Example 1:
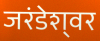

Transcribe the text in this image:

जरंडेश्वर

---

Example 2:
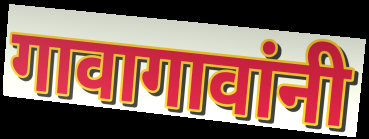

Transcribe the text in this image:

गावागावांनी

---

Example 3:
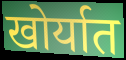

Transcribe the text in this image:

खोर्यात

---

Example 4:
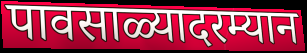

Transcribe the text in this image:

पावसाळ्यादरम्यान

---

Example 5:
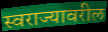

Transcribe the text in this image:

स्वराज्यावरील